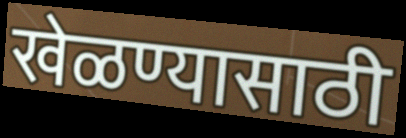
खेळण्यासाठी